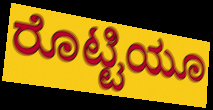
ರೊಟ್ಟಿಯೂ